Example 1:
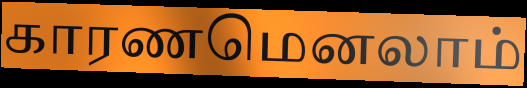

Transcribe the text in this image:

காரணமெனலாம்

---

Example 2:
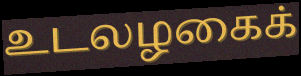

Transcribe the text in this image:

உடலழகைக்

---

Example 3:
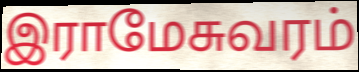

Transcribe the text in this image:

இராமேசுவரம்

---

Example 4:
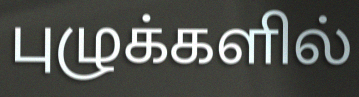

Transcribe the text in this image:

புழுக்களில்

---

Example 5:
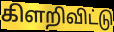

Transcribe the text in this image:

கிளறிவிட்டு